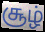
சூழ்